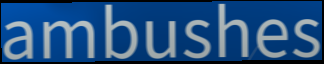
ambushes